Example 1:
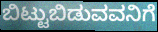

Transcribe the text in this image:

ಬಿಟ್ಟುಬಿಡುವವನಿಗೆ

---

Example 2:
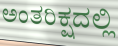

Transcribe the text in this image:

ಅಂತರಿಕ್ಷದಲ್ಲಿ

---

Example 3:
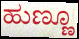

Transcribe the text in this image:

ಹುಣ್ಣೂ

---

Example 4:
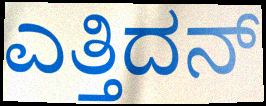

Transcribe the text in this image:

ಎತ್ತಿದನ್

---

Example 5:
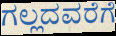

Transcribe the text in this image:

ಗಲ್ಲದವರೆಗೆ